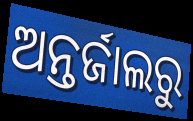
ଅନ୍ତର୍ଜାଲରୁ